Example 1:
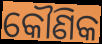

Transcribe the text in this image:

କୌଣିକ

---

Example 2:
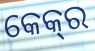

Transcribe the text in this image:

କେକ୍‌ର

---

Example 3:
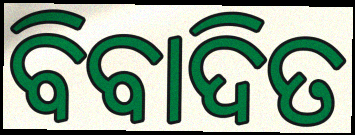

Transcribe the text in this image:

ବିବାଦିତ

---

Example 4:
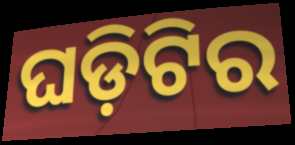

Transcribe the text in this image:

ଘଡ଼ିଟିର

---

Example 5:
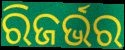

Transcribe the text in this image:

ରିଜର୍ଭର